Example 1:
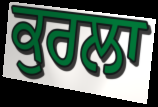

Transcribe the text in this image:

ਕੁਰਲਾ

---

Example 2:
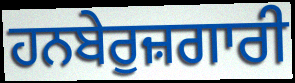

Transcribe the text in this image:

ਹਨਬੇਰੁਜ਼ਗਾਰੀ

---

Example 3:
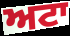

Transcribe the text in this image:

ਅਟਾ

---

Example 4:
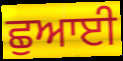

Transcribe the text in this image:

ਛੁਆਈ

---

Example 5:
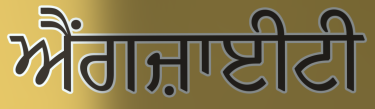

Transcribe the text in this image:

ਐਂਗਜ਼ਾਈਟੀ